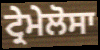
ਟ੍ਰੇਮੇਲੋਸਾ